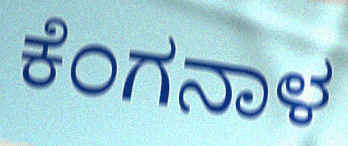
ಕೆಂಗನಾಳ